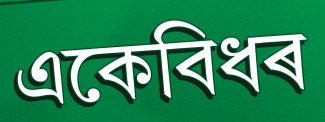
একেবিধৰ